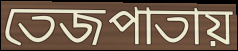
তেজপাতায়